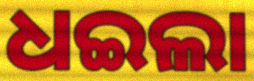
ଧଇଲା